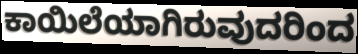
ಕಾಯಿಲೆಯಾಗಿರುವುದರಿಂದ